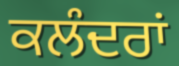
ਕਲੰਦਰਾਂ